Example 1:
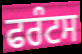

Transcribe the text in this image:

ਫਰੰਟਸ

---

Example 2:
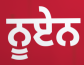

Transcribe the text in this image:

ਨੂਏਨ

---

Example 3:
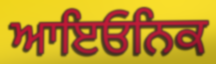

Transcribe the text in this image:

ਆਇਓਨਿਕ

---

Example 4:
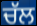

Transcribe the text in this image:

ਚੱਲ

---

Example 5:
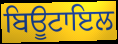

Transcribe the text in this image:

ਬਿਊਟਾਇਲ